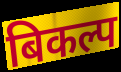
बिकल्प